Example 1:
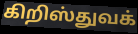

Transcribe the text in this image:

கிறிஸ்துவக்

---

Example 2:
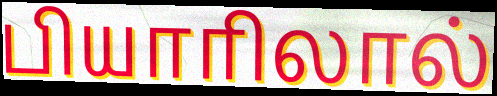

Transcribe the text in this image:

பியாரிலால்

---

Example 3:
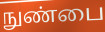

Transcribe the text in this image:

நுண்பை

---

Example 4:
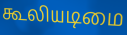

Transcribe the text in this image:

கூலியடிமை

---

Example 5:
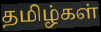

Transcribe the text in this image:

தமிழ்கள்